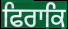
ਫਿਰਾਕਿ